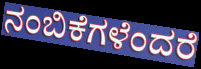
ನಂಬಿಕೆಗಳೆಂದರೆ